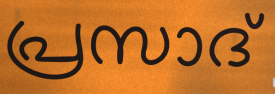
പ്രസാദ്